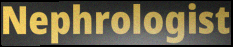
Nephrologist